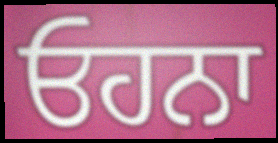
ਓਹਨਾ